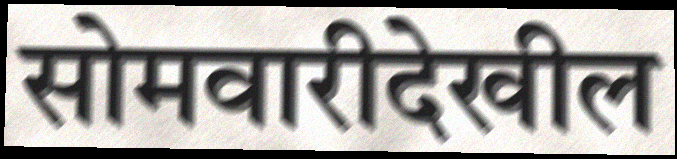
सोमवारीदेखील